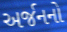
અર્જનનો